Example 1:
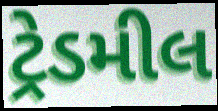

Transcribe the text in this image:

ટ્રેડમીલ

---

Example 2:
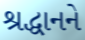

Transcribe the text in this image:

શ્રદ્ધાનને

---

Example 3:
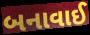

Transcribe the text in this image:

બનાવાઈ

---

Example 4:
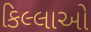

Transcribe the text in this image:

કિલ્લાઓ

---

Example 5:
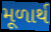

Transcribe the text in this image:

મૂળાર્થ